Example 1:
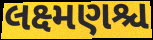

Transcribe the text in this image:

લક્ષ્મણશ્ચ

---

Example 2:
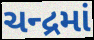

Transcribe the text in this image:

ચન્દ્રમાં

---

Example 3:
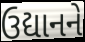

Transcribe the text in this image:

ઉદ્યાનને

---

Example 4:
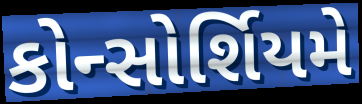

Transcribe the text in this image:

કોન્સોર્શિયમે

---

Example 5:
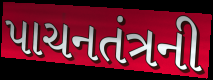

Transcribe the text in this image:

પાચનતંત્રની